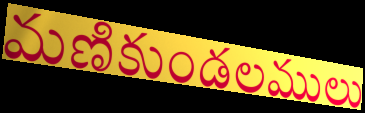
మణికుండలములు